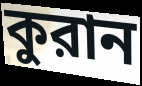
কুরান